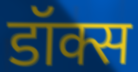
डॉक्स